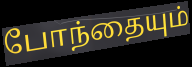
போந்தையும்